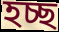
হচ্ছ